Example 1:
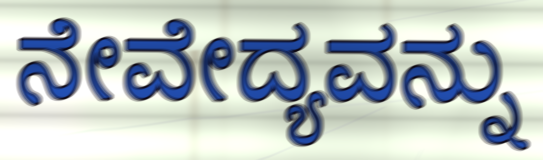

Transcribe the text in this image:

ನೇವೇದ್ಯವನ್ನು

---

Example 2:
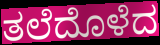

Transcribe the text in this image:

ತಲೆದೊಳೆದ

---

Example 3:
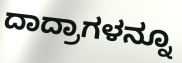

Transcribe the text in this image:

ದಾದ್ರಾಗಳನ್ನೂ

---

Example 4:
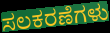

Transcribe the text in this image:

ಸಲಕರಣೆಗಳು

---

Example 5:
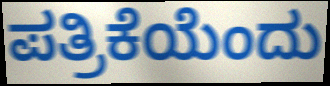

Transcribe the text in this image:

ಪತ್ರಿಕೆಯೆಂದು